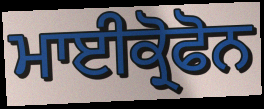
ਮਾਈਕ੍ਰੋਫੋਨ